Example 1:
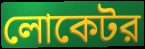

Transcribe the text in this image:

লোকেটর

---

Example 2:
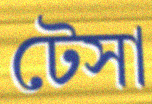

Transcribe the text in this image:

টেসা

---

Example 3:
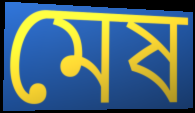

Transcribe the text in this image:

মেষ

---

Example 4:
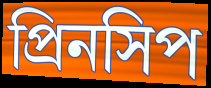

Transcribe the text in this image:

প্রিনসিপ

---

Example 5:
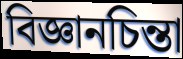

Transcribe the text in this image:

বিজ্ঞানচিন্তা